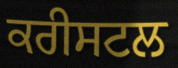
ਕਰੀਸਟਲ